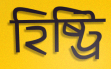
হিষ্ট্রি